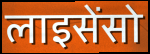
लाइसेंसो